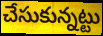
చేసుకున్నట్టు